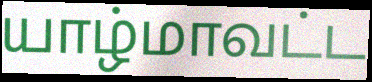
யாழ்மாவட்ட